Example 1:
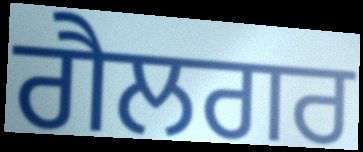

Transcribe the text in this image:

ਗੈਲਗਰ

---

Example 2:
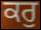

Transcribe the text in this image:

ਕਰੁ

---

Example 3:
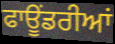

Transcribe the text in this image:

ਫਾਊਂਡਰੀਆਂ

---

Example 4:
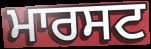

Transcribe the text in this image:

ਮਾਰਸਟ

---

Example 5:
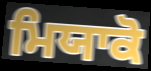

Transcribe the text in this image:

ਮਿਯਾਕੋ